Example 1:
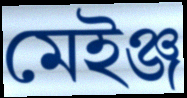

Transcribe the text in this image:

মেইঞ্জ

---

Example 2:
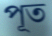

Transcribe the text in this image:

পূত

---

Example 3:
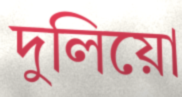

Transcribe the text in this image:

দুলিয়ো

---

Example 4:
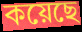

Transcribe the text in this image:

কয়েছে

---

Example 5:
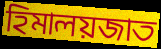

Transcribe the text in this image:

হিমালয়জাত